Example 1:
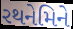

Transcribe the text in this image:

રથનેમિને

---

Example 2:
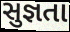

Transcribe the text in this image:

સુજ્ઞતા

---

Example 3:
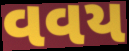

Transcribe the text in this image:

વવય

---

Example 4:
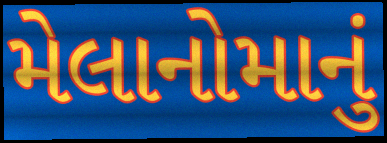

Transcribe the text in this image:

મેલાનોમાનું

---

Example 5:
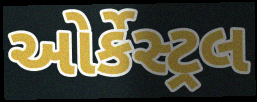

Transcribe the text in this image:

ઓર્કેસ્ટ્રલ